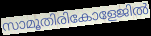
സാമൂതിരികോളേജിൽ